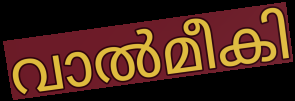
വാൽമീകി